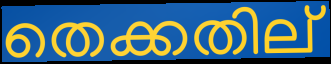
തെക്കതില്